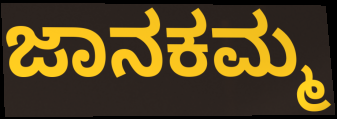
ಜಾನಕಮ್ಮ